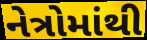
નેત્રોમાંથી